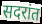
सदरांत